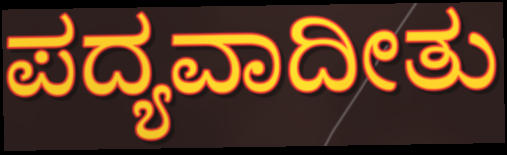
ಪದ್ಯವಾದೀತು